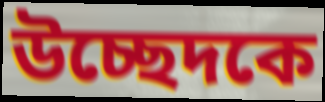
উচ্ছেদকে